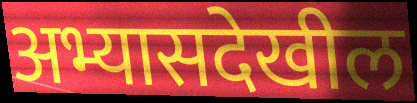
अभ्यासदेखील